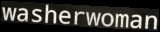
washerwoman